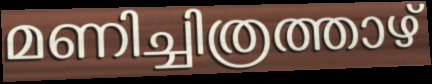
മണിച്ചിത്രത്താഴ്